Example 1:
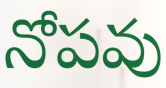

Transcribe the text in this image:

నోపవు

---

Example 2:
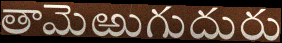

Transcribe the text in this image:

తామెఱుగుదురు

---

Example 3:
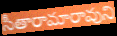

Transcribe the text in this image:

సీతారామారావుని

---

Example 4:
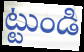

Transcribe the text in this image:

ట్టుండి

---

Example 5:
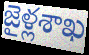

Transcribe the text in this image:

జైళ్లశాఖ